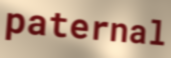
paternal